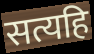
सत्यहि